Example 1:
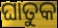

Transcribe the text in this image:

ଘାତୁକ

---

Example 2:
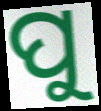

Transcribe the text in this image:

ପୁ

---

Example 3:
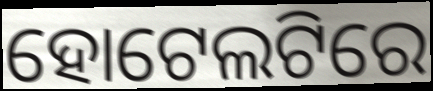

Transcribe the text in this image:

ହୋଟେଲଟିରେ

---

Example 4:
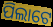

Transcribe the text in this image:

ପିଲାଟେ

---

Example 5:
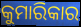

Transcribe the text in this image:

କୁମାରିକାର